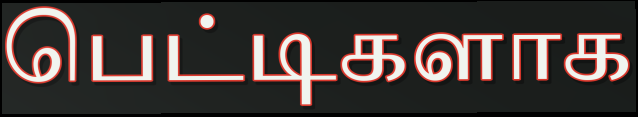
பெட்டிகளாக